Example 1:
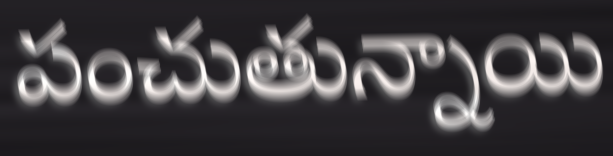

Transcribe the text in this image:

పంచుతున్నాయి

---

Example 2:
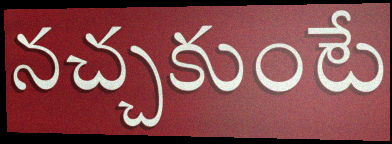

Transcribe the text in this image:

నచ్చకుంటే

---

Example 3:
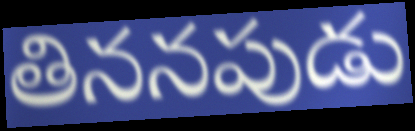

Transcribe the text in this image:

తిననపుడు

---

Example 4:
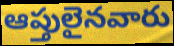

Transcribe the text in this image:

ఆప్తులైనవారు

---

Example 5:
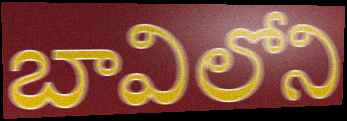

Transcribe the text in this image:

బావిలోని